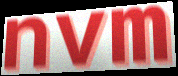
nvm